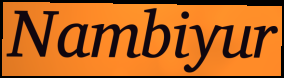
Nambiyur